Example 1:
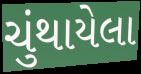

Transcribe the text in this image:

ચુંથાયેલા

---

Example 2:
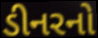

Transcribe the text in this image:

ડીનરનો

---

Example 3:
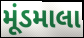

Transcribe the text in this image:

મૂંડમાલા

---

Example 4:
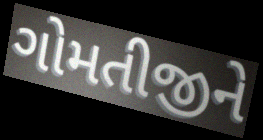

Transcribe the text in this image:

ગોમતીજીને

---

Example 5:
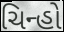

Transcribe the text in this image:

ચિન્હો